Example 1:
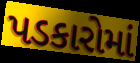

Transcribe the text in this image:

પડકારોમાં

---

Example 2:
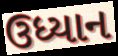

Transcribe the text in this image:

ઉધ્યાન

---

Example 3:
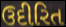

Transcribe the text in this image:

ઉદીરિત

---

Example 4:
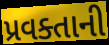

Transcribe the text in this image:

પ્રવક્તાની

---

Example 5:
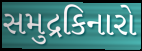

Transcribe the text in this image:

સમુદ્રકિનારો